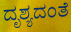
ದೃಶ್ಯದಂತೆ